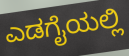
ಎಡಗೈಯಲ್ಲಿ